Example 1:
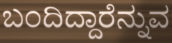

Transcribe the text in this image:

ಬಂದಿದ್ದಾರೆನ್ನುವ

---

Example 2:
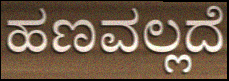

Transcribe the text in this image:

ಹಣವಲ್ಲದೆ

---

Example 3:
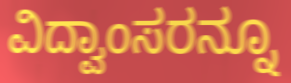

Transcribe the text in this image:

ವಿದ್ವಾಂಸರನ್ನೂ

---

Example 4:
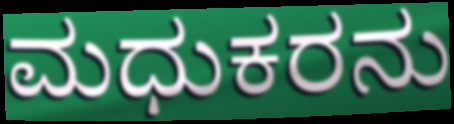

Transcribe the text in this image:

ಮಧುಕರನು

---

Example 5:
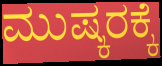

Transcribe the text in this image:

ಮುಷ್ಕರಕ್ಕೆ